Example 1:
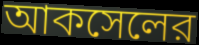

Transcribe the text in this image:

আকসেলের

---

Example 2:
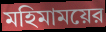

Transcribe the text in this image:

মহিমাময়ের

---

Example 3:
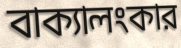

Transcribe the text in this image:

বাক্যালংকার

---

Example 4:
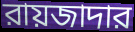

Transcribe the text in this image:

রায়জাদার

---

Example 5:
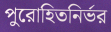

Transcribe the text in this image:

পুরোহিতনির্ভর